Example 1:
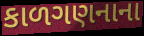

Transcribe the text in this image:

કાળગણનાના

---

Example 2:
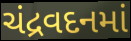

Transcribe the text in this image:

ચંદ્રવદનમાં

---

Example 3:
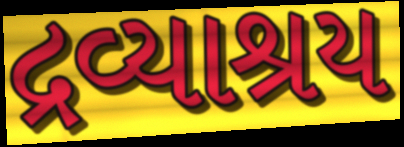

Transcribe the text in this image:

દ્રવ્યાશ્રય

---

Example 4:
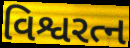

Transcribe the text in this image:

વિશ્વરત્ન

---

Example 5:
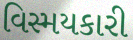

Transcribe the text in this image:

વિસ્મયકારી